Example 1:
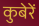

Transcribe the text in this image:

कुबेरें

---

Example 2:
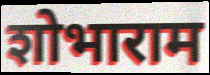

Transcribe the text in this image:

शोभाराम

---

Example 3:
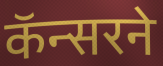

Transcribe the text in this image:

कॅन्सरने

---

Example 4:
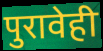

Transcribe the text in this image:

पुरावेही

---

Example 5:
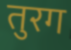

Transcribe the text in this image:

तुरग